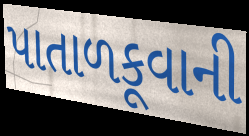
પાતાળકૂવાની